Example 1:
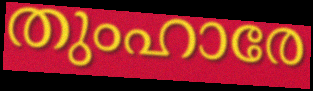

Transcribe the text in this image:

തുംഹാരേ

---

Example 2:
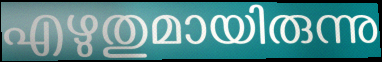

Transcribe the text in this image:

എഴുതുമായിരുന്നു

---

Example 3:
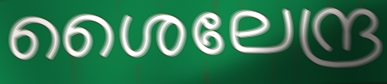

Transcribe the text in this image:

ശൈലേന്ദ്ര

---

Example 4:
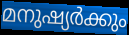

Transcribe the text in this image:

മനുഷ്യർക്കും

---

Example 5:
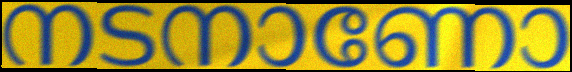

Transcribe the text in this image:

നടനാണോ